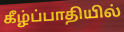
கீழ்ப்பாதியில்